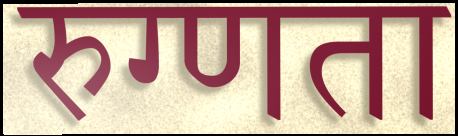
रुग्णता